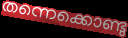
തന്നെക്കൊണ്ടു